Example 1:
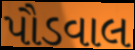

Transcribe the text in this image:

પૌડવાલ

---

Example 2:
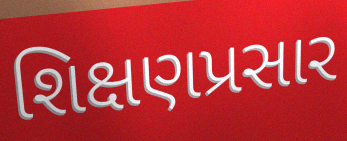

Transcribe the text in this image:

શિક્ષણપ્રસાર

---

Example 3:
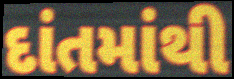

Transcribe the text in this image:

દાંતમાંથી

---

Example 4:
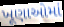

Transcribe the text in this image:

ખૂણાઓમાં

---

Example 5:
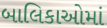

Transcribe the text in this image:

બાલિકાઓમાં